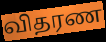
விதரண